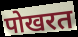
पोखरत